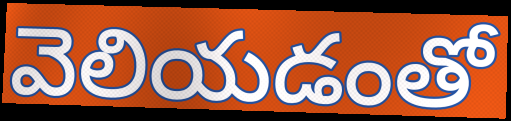
వెలియడంతో